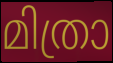
മിത്രാ